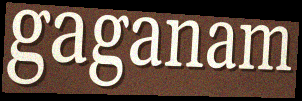
gaganam